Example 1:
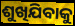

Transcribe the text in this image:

ଶୁଖିଯିବାକୁ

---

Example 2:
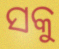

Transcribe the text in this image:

ସକୁ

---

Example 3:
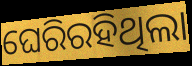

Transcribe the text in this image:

ଘେରିରହିଥିଲା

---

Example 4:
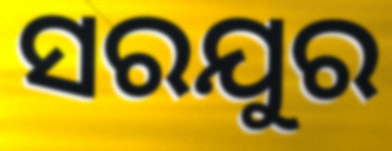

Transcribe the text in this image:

ସରଯୁର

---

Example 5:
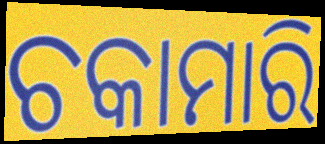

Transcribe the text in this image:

ଚକାମାରି